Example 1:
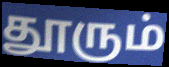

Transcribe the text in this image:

தூரும்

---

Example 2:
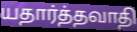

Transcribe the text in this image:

யதார்த்தவாதி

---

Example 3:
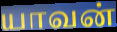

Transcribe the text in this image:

யாவன்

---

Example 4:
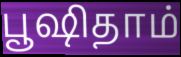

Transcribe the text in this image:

பூஷிதாம்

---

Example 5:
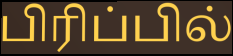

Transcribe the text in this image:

பிரிப்பில்